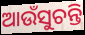
ଆଉଁସୁଚନ୍ତି